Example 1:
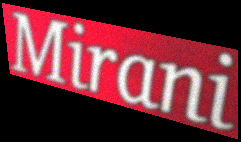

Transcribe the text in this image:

Mirani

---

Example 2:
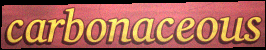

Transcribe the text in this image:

carbonaceous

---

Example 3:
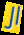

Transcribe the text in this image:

Jl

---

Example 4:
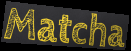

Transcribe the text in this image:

Matcha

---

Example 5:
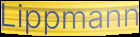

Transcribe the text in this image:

Lippmann